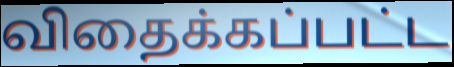
விதைக்கப்பட்ட